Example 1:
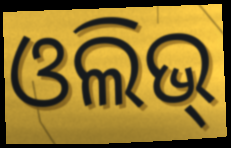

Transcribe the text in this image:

ଓଲିଭ୍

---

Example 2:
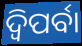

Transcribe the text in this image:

ଦ୍ଵିପର୍ବା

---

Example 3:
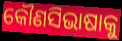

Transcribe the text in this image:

କୌଣସିଭାଷାକୁ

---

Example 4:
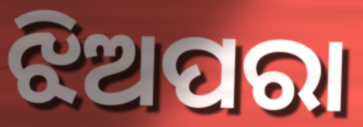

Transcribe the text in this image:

ଝିଅପରା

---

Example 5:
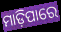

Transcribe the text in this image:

ମାଡ଼ିପାରେ